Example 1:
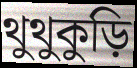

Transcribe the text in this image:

থুথুকুড়ি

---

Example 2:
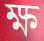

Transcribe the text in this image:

ক্ষ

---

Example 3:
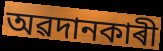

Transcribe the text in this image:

অৱদানকাৰী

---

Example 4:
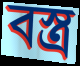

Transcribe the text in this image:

বস্ত্ৰ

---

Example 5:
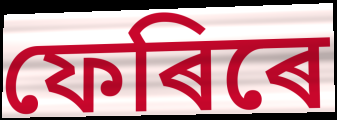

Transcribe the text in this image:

ফেৰিৰে